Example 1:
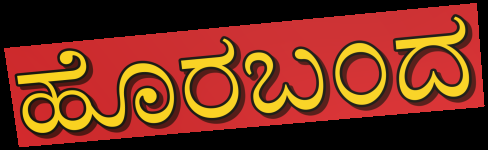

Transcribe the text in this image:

ಹೊರಬಂದ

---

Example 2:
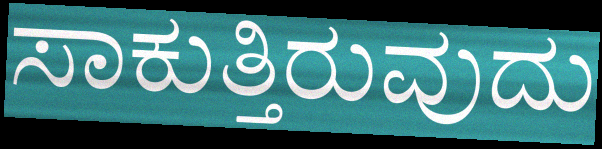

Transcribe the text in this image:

ಸಾಕುತ್ತಿರುವುದು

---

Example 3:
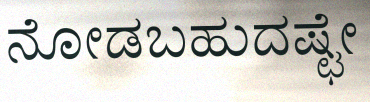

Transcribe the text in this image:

ನೋಡಬಹುದಷ್ಟೇ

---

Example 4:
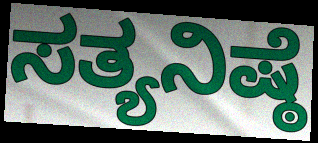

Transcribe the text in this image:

ಸತ್ಯನಿಷ್ಠೆ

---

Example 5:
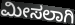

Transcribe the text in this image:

ಮೀಸಲಾಗಿ